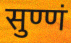
सुण्णं